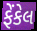
ફેંકેલ